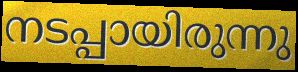
നടപ്പായിരുന്നു